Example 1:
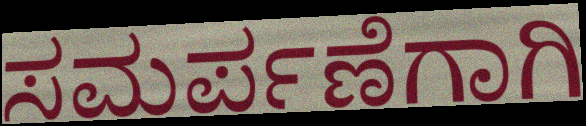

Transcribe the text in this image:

ಸಮರ್ಪಣೆಗಾಗಿ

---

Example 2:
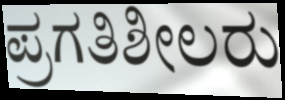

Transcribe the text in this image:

ಪ್ರಗತಿಶೀಲರು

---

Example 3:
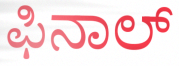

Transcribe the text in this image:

ಫಿನಾಲ್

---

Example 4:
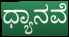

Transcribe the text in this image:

ಧ್ಯಾನವೆ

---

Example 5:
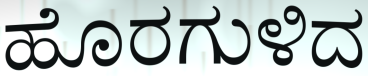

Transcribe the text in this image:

ಹೊರಗುಳಿದ